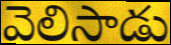
వెలిసాడు